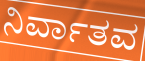
ನಿರ್ವಾತವ